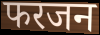
फरजन